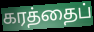
கரத்தைப்